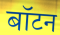
बॉटन